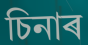
চিনাৰ